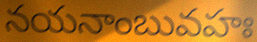
నయనాంబువహః